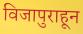
विजापुराहून